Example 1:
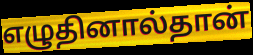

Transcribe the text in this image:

எழுதினால்தான்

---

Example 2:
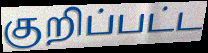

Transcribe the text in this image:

குறிப்பட்ட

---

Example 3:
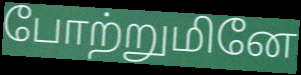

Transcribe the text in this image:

போற்றுமினே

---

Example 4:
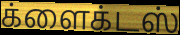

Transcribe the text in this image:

க்ளைக்டஸ்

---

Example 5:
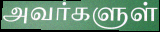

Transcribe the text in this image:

அவர்களுள்